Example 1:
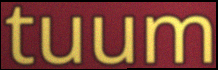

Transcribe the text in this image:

tuum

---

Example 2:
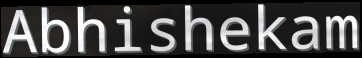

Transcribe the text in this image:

Abhishekam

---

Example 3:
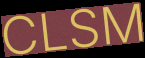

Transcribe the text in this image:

CLSM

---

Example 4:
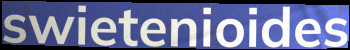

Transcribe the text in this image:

swietenioides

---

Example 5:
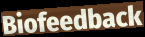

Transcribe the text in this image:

Biofeedback